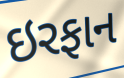
ઇરફાન